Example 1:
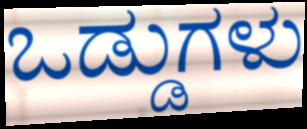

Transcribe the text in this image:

ಒಡ್ಡುಗಳು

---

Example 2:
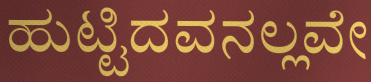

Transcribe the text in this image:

ಹುಟ್ಟಿದವನಲ್ಲವೇ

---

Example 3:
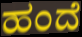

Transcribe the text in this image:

ಹಂದೆ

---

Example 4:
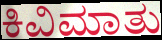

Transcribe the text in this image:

ಕಿವಿಮಾತು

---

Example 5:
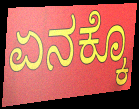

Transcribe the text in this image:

ಏನಕ್ಕೊ